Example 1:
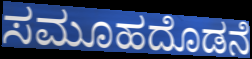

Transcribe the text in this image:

ಸಮೂಹದೊಡನೆ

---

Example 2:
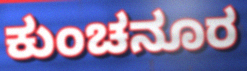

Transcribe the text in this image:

ಕುಂಚನೂರ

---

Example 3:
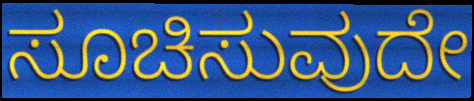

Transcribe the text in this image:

ಸೂಚಿಸುವುದೇ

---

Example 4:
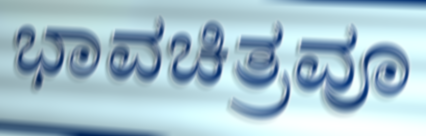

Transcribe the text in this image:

ಭಾವಚಿತ್ರವೂ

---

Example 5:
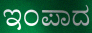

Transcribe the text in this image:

ಇಂಪಾದ